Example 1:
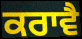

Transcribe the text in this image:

ਕਰਾਵੈ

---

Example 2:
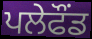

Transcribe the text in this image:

ਪਲੇਫੌਂਡ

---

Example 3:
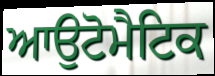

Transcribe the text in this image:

ਆਉਟੋਮੈਟਿਕ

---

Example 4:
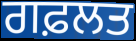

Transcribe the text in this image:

ਗਫ਼ਲਤ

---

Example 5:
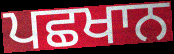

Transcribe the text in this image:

ਪਛਖਾਨ